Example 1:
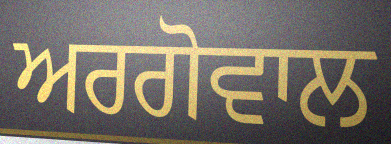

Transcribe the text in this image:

ਅਰਗੋਵਾਲ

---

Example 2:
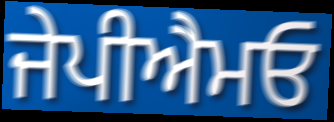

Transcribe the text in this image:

ਜੇਪੀਐਮਓ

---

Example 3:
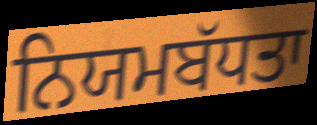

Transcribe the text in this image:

ਨਿਯਮਬੱਧਤਾ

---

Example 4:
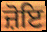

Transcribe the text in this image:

ਜ਼ੋਇ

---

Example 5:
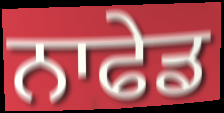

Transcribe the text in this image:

ਨਾਫੇਡ